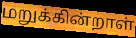
மறுக்கின்றாள்